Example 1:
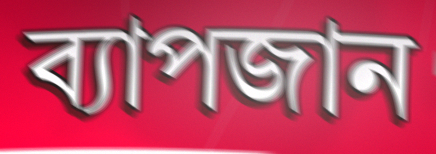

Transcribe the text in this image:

ব্যাপজান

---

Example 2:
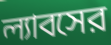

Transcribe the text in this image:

ল্যাবসের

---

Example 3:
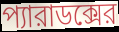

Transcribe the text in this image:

প্যারাডক্সের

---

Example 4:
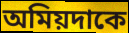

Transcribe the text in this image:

অমিয়দাকে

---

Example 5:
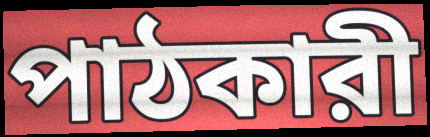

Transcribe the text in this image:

পাঠকারী